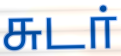
சுடர்